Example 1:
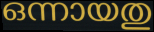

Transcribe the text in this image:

ഒന്നായതു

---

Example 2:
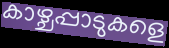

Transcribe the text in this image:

കാഴ്ചപ്പാടുകളെ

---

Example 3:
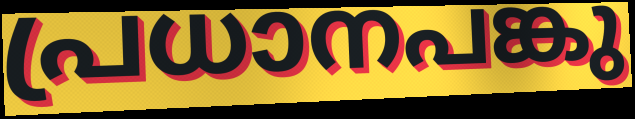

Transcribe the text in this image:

പ്രധാനപങ്കു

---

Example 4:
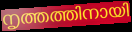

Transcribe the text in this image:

നൃത്തത്തിനായി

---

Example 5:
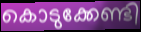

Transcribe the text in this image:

കൊടുക്കേണ്ടി